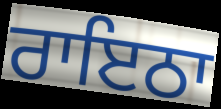
ਰਾਇਠਾ